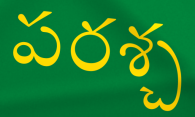
పరశ్చ